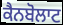
ਕੈਨਬੋਲਾਟ